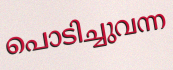
പൊടിച്ചുവന്ന